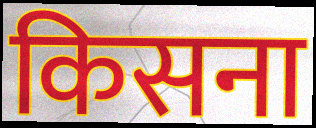
किसना